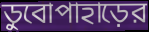
ডুবোপাহাড়ের